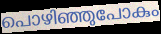
പൊഴിഞ്ഞുപോകും